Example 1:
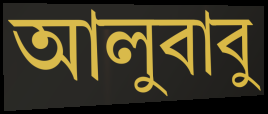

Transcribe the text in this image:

আলুবাবু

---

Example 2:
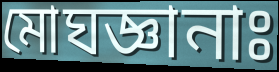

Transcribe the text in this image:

মোঘজ্ঞানাঃ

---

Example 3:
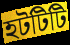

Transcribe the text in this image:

হটটিটি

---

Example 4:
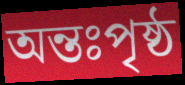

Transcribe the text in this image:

অন্তঃপৃষ্ঠ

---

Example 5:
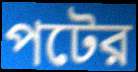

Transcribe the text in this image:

পটের